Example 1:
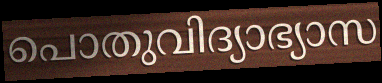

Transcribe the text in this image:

പൊതുവിദ്യാഭ്യാസ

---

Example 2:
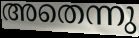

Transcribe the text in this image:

അതെന്നു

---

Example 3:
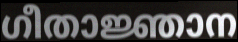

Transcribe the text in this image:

ഗീതാജ്ഞാന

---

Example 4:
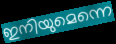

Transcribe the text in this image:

ഇനിയുമെന്നെ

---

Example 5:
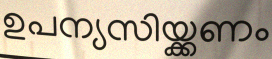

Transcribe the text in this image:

ഉപന്യസിയ്ക്കണം